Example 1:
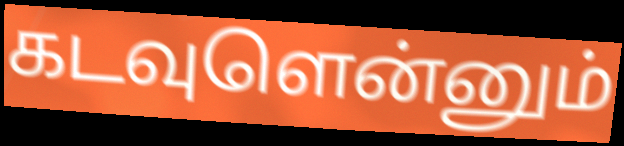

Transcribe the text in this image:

கடவுளென்னும்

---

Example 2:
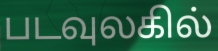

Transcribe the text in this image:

படவுலகில்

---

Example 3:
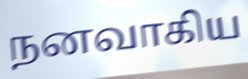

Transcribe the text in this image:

நனவாகிய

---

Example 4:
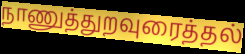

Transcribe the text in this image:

நாணுத்துறவுரைத்தல்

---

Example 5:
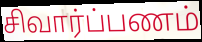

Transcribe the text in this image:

சிவார்ப்பணம்